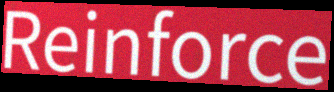
Reinforce